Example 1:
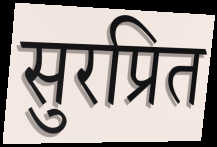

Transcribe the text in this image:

सुरप्रित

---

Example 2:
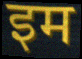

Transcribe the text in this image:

इम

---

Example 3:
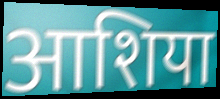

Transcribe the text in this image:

आशिया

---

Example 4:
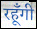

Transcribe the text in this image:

रहूँगी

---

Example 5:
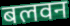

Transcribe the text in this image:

बलवन